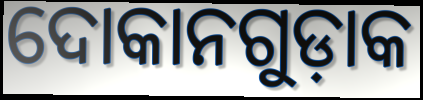
ଦୋକାନଗୁଡ଼ାକ